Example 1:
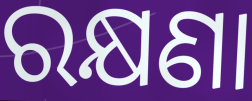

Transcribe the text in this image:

ରକ୍ଷଣା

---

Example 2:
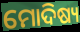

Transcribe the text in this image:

ମୋଦିଷ୍ୟ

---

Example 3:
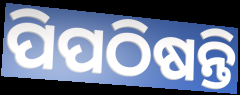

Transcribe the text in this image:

ପିପଠିଷନ୍ତି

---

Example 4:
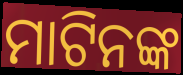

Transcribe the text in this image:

ମାଟିନଙ୍କ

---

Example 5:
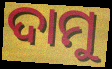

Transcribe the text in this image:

ଦାମୁ